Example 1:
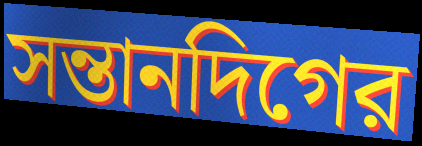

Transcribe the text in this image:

সন্তানদিগের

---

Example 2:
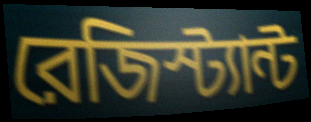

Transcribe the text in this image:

রেজিস্ট্যান্ট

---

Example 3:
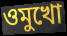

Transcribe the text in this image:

ওমুখো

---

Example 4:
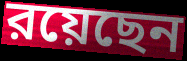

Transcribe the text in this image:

রয়েছেন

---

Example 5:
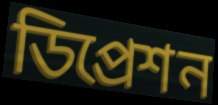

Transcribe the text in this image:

ডিপ্রেশন